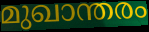
മുഖാന്തരം